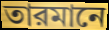
তারমানে